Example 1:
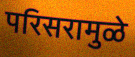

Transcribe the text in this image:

परिसरामुळे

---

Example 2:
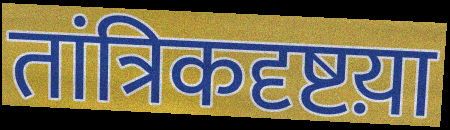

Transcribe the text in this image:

तांत्रिकदृष्टय़ा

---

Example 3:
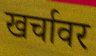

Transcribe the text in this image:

खर्चावर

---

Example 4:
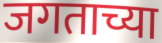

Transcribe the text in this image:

जगताच्या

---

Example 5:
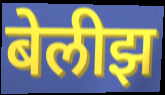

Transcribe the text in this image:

बेलीझ